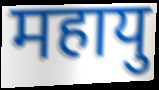
महायु